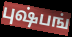
புஷ்பங்